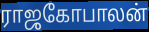
ராஜகோபாலன்